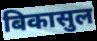
बिकासुल